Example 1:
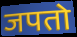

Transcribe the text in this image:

जपतो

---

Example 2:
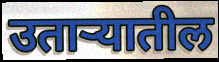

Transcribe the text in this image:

उताऱ्यातील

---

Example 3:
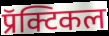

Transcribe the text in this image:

प्रॅक्टिकल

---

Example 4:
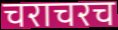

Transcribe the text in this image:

चराचरच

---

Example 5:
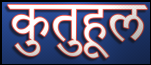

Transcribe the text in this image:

कुतुहूल